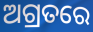
ଅଗ୍ରତରେ